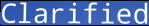
Clarified